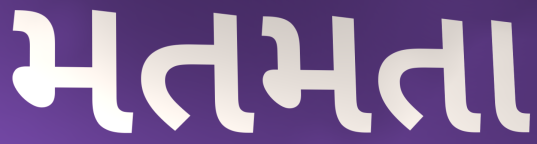
મતમતા